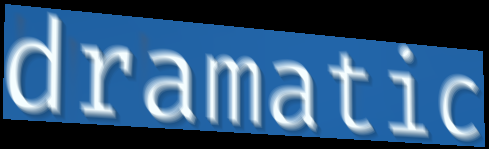
dramatic